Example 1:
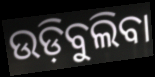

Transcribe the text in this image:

ଉଡ଼ିବୁଲିବା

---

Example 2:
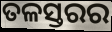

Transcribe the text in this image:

ତଳସ୍ତରର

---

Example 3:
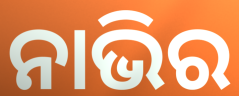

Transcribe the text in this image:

ନାଭିର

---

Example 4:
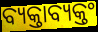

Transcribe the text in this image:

ବ୍ୟକ୍ତାବ୍ୟକ୍ତଂ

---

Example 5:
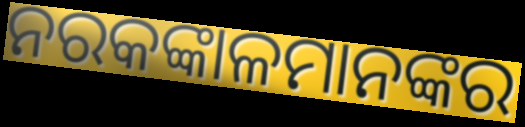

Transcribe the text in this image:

ନରକଙ୍କାଳମାନଙ୍କର